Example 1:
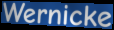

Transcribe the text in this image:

Wernicke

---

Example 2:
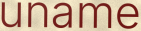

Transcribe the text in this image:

uname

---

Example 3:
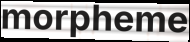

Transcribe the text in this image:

morpheme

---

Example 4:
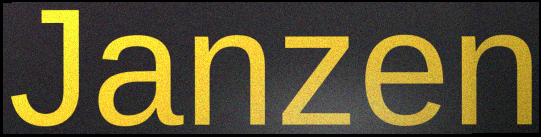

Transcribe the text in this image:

Janzen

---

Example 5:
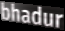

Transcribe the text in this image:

bhadur